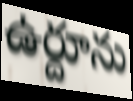
ఉర్దూను